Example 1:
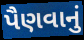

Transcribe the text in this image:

પૈણવાનું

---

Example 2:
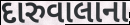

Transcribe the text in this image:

દારુવાલાના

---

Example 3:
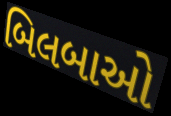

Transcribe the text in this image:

બિલબાઓ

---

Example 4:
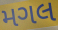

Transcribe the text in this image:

મગલ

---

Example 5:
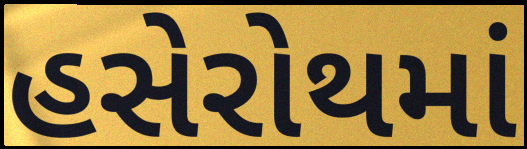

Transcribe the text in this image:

હસેરોથમાં